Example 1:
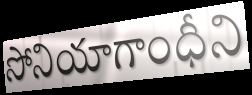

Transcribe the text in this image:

సోనియాగాంధీని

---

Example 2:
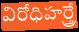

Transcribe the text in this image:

విరోధిహర్త్రే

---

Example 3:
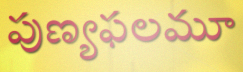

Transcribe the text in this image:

పుణ్యఫలమూ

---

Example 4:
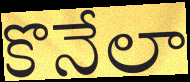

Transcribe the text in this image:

కొనేలా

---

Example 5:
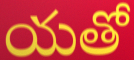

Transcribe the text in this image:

యతో